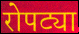
रोपट्या